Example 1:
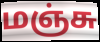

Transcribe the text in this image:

மஞ்சு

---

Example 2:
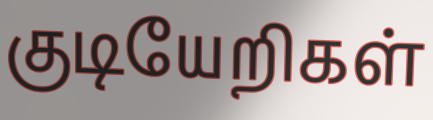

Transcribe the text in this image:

குடியேறிகள்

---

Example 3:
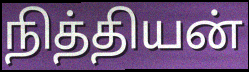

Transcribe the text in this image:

நித்தியன்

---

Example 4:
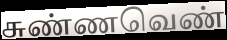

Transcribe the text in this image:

சுண்ணவெண்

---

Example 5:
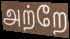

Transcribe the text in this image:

அற்றே